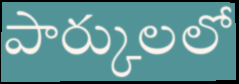
పార్కులలో